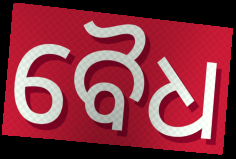
ବୈଧ